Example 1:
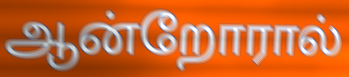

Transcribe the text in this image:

ஆன்றோரால்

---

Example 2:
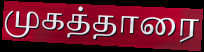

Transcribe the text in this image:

முகத்தாரை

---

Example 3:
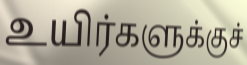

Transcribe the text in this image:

உயிர்களுக்குச்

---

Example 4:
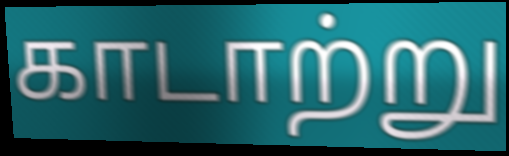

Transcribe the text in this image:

காடாற்று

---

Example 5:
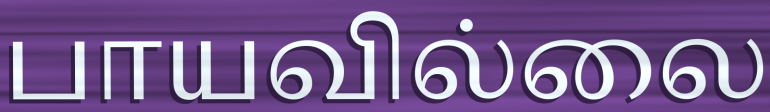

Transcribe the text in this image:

பாயவில்லை